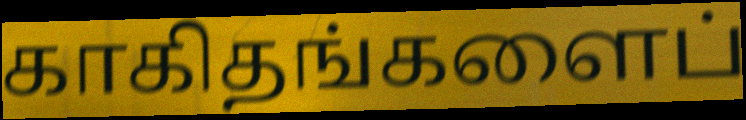
காகிதங்களைப்